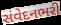
સંવેદનભરી